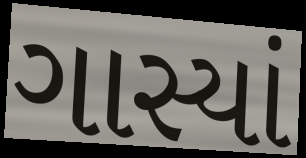
ગાસ્યાં